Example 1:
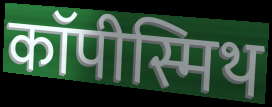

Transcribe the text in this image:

कॉपीस्मिथ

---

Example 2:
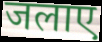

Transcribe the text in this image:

जलाए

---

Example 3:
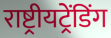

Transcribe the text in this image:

राष्ट्रीयट्रेंडिंग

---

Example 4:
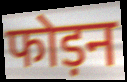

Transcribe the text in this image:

फोड़न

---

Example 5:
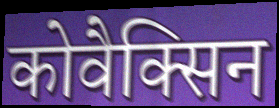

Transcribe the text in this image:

कोवैक्सिन